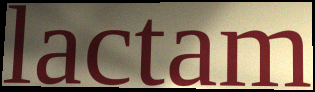
lactam